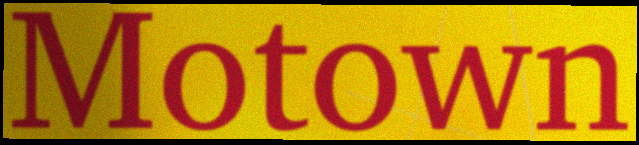
Motown